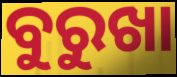
ବୁରୁଖା